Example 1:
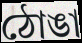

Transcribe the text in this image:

ঠোঙা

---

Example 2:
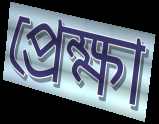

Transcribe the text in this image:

প্ৰেক্ষা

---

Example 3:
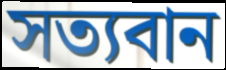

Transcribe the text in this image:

সত্যবান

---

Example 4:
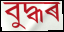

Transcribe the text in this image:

বুদ্ধৰ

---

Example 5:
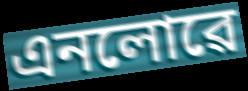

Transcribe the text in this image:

এনলোৱে